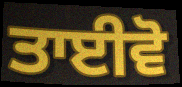
ਤਾਈਵੋ